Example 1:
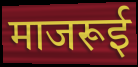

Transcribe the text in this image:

माजरूई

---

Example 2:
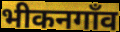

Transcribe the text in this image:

भीकनगाँव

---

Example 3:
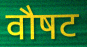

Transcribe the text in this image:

वौषट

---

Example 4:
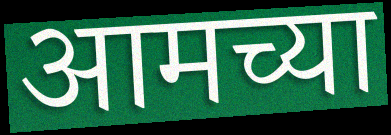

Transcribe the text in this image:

आमच्या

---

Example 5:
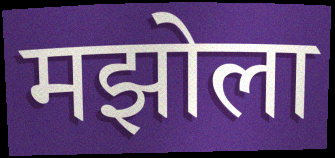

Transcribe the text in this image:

मझोला